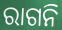
ରାଗନି